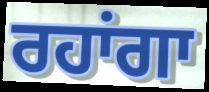
ਰਹਾਂਗਾ